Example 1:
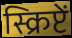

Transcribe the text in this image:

स्क्रिप्टें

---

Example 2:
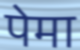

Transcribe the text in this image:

पेमा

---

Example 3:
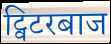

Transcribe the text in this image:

ट्विटरबाज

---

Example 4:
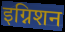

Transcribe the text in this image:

इग्निशन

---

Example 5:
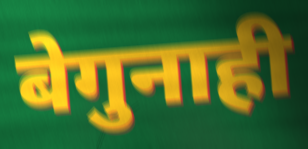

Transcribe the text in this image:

बेगुनाही